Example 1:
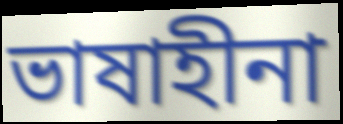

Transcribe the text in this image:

ভাষাহীনা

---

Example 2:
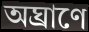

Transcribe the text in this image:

অঘ্রাণে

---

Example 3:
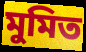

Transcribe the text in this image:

মুমিত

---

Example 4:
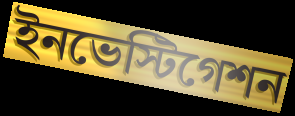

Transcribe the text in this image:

ইনভেস্টিগেশন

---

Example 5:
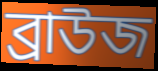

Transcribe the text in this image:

ব্রাউজ